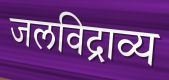
जलविद्राव्य